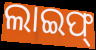
ଲାଇଫ୍